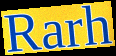
Rarh